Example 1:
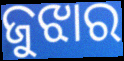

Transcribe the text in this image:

ଜୁଝାର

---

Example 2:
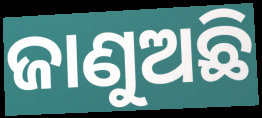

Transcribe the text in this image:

ଜାଣୁଅଛି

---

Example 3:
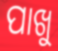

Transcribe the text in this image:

ପାଖୁ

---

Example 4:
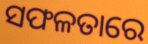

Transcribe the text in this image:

ସଫଳତାରେ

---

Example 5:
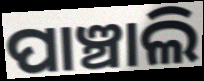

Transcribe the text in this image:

ପାଞ୍ଚାଲି